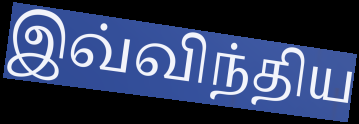
இவ்விந்திய